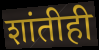
शांतीही